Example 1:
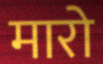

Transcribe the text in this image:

मारो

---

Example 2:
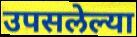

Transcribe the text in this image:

उपसलेल्या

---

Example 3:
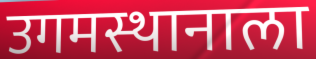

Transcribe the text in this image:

उगमस्थानाला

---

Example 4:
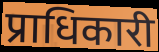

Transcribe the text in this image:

प्राधिकारी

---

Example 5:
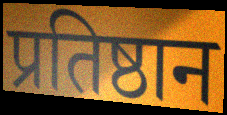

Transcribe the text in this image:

प्रतिष्ठान